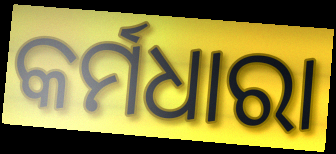
କର୍ମଧାରା